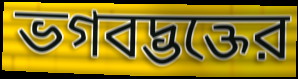
ভগবদ্ভক্তের